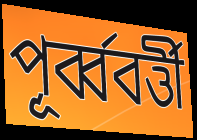
পূর্ব্ববর্ত্তী